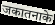
जकातनाके